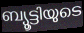
ബ്യൂട്ടിയുടെ